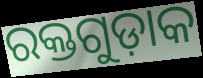
ରକ୍ତଗୁଡ଼ାକ